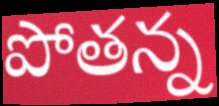
పోతన్న